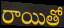
రాయితో